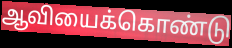
ஆவியைக்கொண்டு